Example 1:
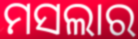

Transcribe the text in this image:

ମସଲାର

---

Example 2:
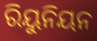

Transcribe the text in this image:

ରିୟୁନିୟନ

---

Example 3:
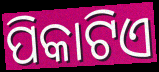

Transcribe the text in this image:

ପିକାଟିଏ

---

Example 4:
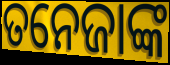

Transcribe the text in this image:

ତନେଜାଙ୍କ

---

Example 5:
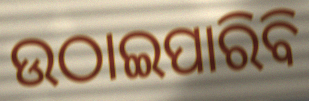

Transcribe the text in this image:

ଉଠାଇପାରିବି